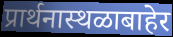
प्रार्थनास्थळाबाहेर